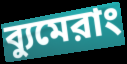
ব্যুমেরাং